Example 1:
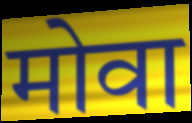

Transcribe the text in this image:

मोवा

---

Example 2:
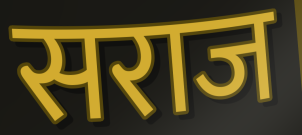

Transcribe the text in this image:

सराज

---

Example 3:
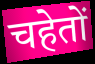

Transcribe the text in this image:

चहेतों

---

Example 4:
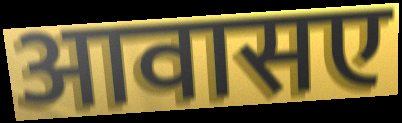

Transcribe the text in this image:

आवासए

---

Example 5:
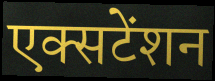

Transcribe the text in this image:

एक्सटेंशन